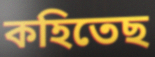
কহিতেছ